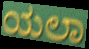
ಯಲಾ